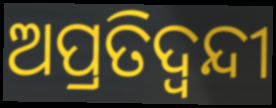
ଅପ୍ରତିଦ୍ବନ୍ଦୀ